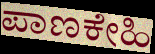
ಪಾಣಕೇಹಿ